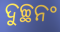
ଦୁଚ୍ଛନଂ